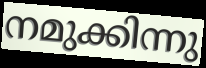
നമുക്കിന്നു